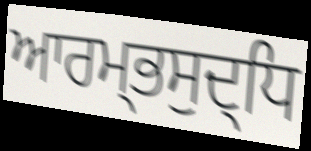
ਆਰਮ੍ਭਸੁਦ੍ਧਿ